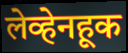
लेव्हेनहूक